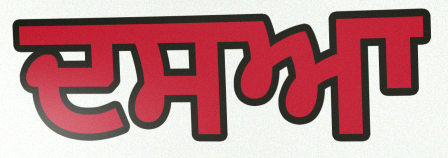
ਦਸਆ